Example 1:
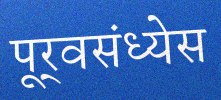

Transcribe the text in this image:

पूर्वसंध्येस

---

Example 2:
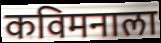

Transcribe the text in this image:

कविमनाला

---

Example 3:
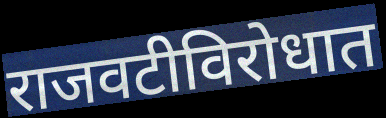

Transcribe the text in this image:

राजवटीविरोधात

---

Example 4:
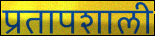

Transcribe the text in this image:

प्रतापशाली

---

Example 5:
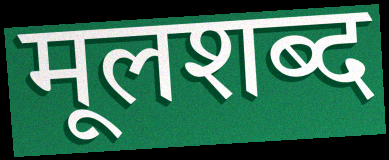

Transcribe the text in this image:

मूलशब्द